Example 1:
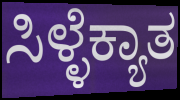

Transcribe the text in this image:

ಸಿಳ್ಳೆಕ್ಯಾತ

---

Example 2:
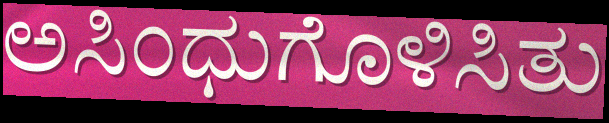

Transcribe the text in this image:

ಅಸಿಂಧುಗೊಳಿಸಿತು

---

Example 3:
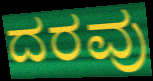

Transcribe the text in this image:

ದರವು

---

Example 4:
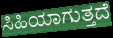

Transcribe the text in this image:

ಸಿಹಿಯಾಗುತ್ತದೆ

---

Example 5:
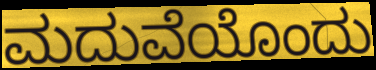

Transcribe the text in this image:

ಮದುವೆಯೊಂದು